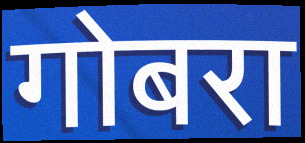
गोबरा